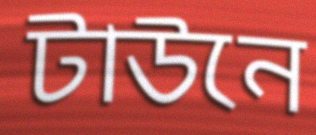
টাউনে